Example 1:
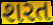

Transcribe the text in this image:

શરત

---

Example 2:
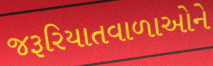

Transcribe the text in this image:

જરૂરિયાતવાળાઓને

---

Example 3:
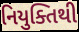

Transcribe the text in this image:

નિયુક્તિથી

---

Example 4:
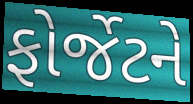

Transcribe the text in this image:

ફોર્જેટને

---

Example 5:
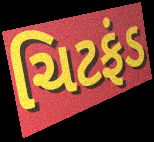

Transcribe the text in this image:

ચિટફંડ